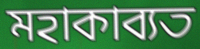
মহাকাব্যত